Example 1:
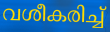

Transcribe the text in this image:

വശീകരിച്ച്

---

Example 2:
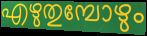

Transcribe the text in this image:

എഴുതുമ്പോഴും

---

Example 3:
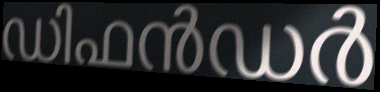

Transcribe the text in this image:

ഡിഫൻഡർ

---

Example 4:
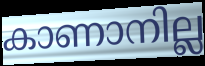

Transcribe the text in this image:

കാണാനില്ല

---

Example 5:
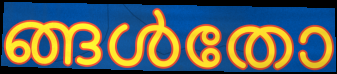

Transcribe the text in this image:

ങ്ങൾതോ